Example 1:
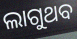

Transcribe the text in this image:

ଲାଗୁଥବ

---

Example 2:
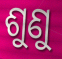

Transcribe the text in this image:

ଶୁଣୁ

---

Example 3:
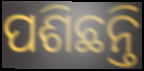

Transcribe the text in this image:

ପଶିଛନ୍ତି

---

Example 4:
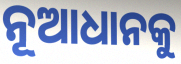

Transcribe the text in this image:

ନୂଆଧାନକୁ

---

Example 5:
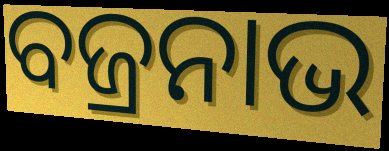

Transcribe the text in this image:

ବଜ୍ରନାଭ